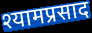
श्यामप्रसाद